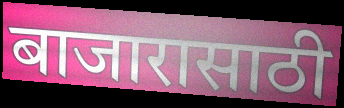
बाजारासाठी